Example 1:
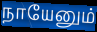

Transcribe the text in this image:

நாயேனும்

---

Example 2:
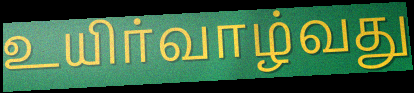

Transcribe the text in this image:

உயிர்வாழ்வது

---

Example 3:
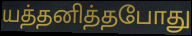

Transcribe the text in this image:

யத்தனித்தபோது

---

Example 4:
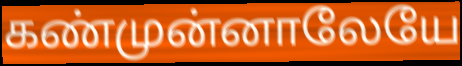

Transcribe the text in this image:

கண்முன்னாலேயே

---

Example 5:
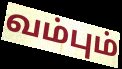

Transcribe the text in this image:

வம்பும்